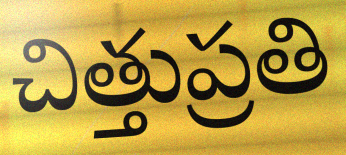
చిత్తుప్రతి